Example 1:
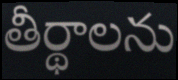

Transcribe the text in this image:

తీర్థాలను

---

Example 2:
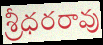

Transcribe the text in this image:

శ్రీధరరావు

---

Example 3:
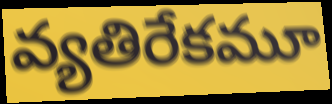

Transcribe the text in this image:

వ్యతిరేకమూ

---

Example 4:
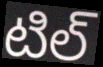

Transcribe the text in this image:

టిల్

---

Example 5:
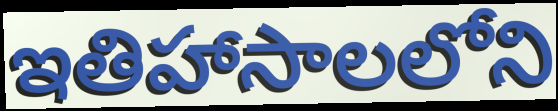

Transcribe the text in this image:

ఇతిహాసాలలోని